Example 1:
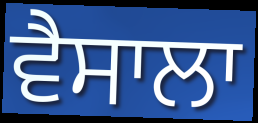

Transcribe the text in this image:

ਵੈਸਾਲਾ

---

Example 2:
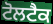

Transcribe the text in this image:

ਟੋਲਟੈਕ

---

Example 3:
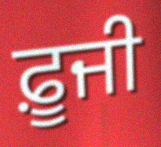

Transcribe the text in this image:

ਫ਼ੂਜੀ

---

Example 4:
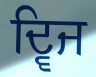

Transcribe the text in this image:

ਦ੍ਵਿਜ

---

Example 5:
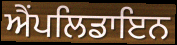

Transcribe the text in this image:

ਐੰਪਲਿਡਾਇਨ